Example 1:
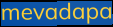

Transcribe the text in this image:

mevadapa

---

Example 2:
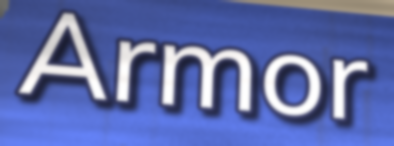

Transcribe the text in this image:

Armor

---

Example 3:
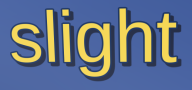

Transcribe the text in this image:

slight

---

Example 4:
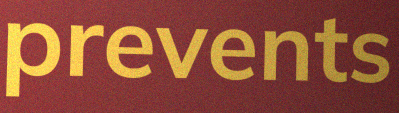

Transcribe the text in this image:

prevents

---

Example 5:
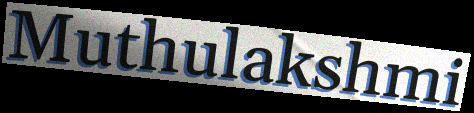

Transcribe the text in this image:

Muthulakshmi